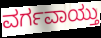
ವರ್ಗವಾಯ್ತು